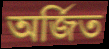
অৰ্জিত